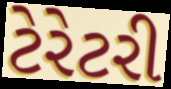
ટેરેટરી